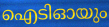
ഐടിഓയും